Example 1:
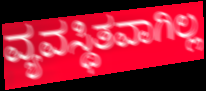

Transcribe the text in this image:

ವ್ಯವಸ್ಥಿತವಾಗಿಲ್ಲ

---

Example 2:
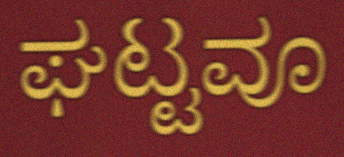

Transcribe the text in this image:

ಘಟ್ಟವೂ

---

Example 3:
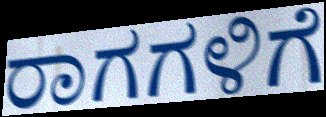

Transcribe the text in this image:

ರಾಗಗಳಿಗೆ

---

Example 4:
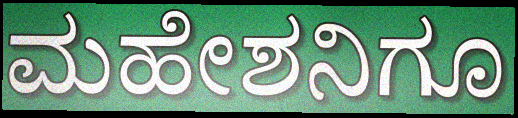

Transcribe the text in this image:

ಮಹೇಶನಿಗೂ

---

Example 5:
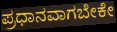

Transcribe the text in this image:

ಪ್ರಧಾನವಾಗಬೇಕೇ